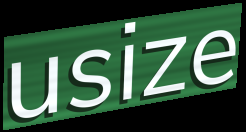
usize